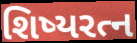
શિષ્યરત્ન